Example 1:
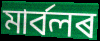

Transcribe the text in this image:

মাৰ্বলৰ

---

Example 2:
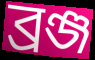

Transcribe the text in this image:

ব্ৰঞ্জ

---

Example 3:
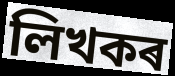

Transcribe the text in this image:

লিখকৰ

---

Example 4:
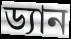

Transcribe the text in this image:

ড্যান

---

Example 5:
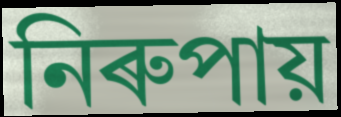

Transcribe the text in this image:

নিৰুপায়